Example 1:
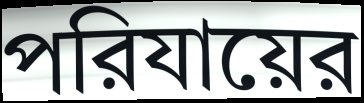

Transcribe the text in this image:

পরিযায়ের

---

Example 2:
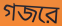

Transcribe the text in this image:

গজরে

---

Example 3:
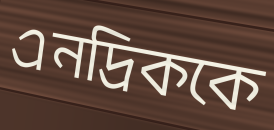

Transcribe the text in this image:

এনদ্রিককে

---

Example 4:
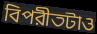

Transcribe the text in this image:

বিপরীতটাও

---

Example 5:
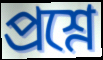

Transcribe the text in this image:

প্রশ্নে